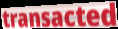
transacted